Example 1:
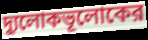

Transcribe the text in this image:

দ্যুলোকভূলোকের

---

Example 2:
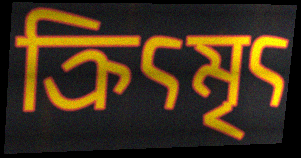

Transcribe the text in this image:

ক্রিৎমৃৎ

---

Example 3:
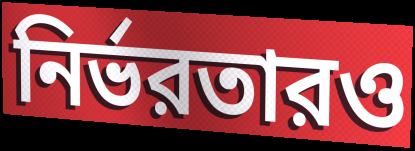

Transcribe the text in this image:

নির্ভরতারও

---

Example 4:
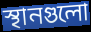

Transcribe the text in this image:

স্থানগুলো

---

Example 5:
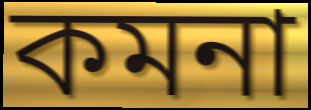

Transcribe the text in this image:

কমনা